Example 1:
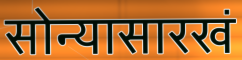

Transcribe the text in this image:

सोन्यासारखं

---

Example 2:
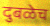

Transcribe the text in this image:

दुबळेच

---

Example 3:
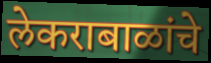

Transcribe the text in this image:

लेकराबाळांचे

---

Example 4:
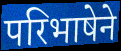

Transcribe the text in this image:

परिभाषेने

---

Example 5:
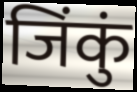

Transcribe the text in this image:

जिंकुं